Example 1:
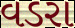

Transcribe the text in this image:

વડરા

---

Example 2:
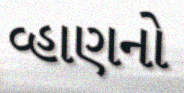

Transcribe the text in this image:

વ્હાણનો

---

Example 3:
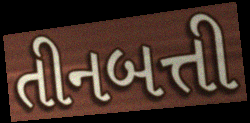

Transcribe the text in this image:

તીનબત્તી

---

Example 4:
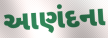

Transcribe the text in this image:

આણંદના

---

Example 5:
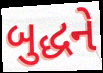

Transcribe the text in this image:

બુદ્ધને